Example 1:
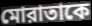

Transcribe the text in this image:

মোরাতাকে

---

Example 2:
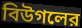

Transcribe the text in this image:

বিউগলের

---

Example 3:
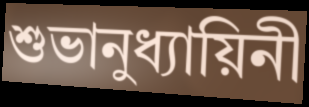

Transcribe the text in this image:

শুভানুধ্যায়িনী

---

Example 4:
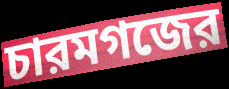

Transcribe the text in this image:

চারমগজের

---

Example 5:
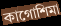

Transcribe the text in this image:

কাগোশিমা